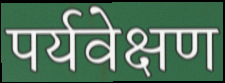
पर्यवेक्षण